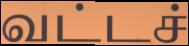
வட்டச்